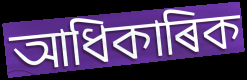
আধিকাৰিক